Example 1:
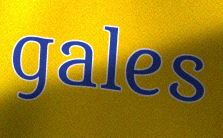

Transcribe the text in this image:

gales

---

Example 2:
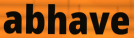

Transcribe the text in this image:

abhave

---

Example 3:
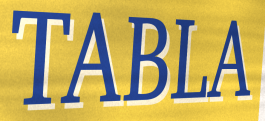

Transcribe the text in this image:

TABLA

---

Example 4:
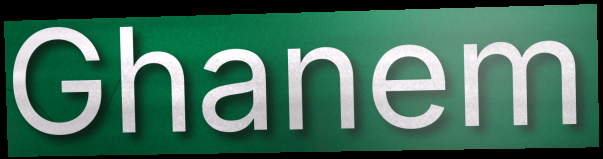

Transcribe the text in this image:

Ghanem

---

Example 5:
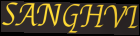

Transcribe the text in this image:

SANGHVI